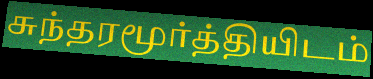
சுந்தரமூர்த்தியிடம்